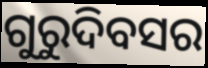
ଗୁରୁଦିବସର